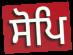
ਸੋਪਿ